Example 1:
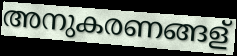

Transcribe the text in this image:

അനുകരണങ്ങള്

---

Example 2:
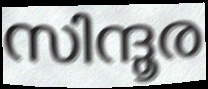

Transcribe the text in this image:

സിന്ദൂര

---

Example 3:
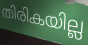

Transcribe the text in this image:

തിരികയില്ല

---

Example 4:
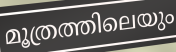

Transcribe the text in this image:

മൂത്രത്തിലെയും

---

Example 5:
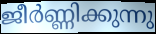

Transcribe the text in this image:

ജീർണ്ണിക്കുന്നു